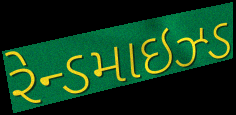
રેન્ડમાઇઝ્ડ